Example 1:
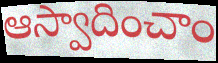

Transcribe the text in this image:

ఆస్వాదించాం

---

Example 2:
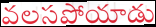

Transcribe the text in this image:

వలసపోయాడు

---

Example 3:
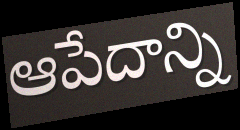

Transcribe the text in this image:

ఆపేదాన్ని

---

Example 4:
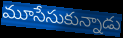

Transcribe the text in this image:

మూసేసుకున్నాడు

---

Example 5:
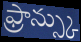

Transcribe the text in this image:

ఫ్రాన్స్కు